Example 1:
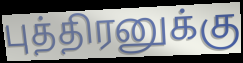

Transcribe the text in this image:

புத்திரனுக்கு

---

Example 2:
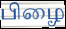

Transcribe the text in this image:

பிழை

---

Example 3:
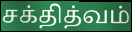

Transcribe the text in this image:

சக்தித்வம்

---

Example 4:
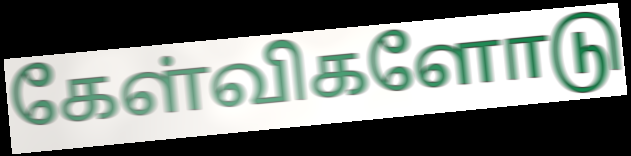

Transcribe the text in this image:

கேள்விகளோடு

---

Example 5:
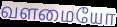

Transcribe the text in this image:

வளமையோ